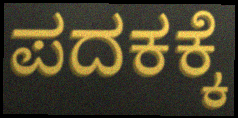
ಪದಕಕ್ಕೆ